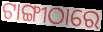
ଟାଙ୍ଗୀଠାରେ